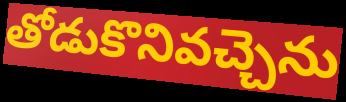
తోడుకొనివచ్చెను